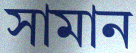
সামান